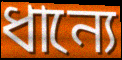
ধান্যে